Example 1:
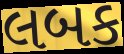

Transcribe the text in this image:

લબક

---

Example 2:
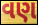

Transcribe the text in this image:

વણ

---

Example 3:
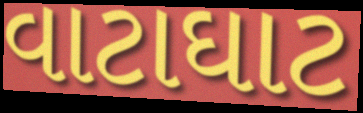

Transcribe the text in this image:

વાટાઘાટ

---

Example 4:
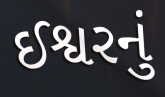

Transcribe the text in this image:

ઈશ્વરનું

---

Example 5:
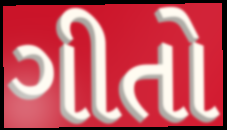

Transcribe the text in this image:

ગીતો